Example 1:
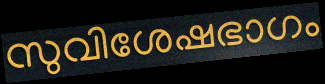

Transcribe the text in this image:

സുവിശേഷഭാഗം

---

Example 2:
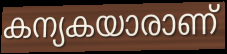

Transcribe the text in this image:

കന്യകയാരാണ്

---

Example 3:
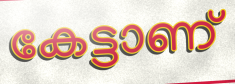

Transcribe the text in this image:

കേട്ടാണ്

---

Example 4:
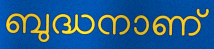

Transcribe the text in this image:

ബുദ്ധനാണ്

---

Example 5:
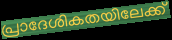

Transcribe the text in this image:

പ്രാദേശികതയിലേക്ക്